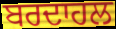
ਬਰਦਾਹਲ